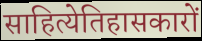
साहित्येतिहासकारों